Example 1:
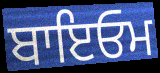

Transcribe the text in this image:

ਬਾਇਓਮ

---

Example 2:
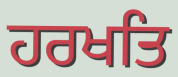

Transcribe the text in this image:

ਹਰਖਤਿ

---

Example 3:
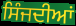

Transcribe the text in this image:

ਸਿੰਜਦੀਆਂ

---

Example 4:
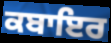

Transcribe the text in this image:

ਕਬਾਇਰ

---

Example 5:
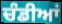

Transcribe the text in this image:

ਚੰਡੀਆਂ